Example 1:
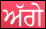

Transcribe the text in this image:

ਅੱਗੇ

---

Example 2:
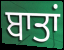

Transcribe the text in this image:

ਬਾਤਾਂ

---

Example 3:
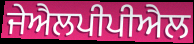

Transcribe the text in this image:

ਜੇਐਲਪੀਪੀਐਲ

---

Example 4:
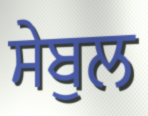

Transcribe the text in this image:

ਸੇਬੁਲ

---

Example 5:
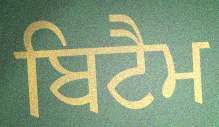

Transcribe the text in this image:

ਬਿਟੈਮ